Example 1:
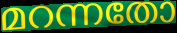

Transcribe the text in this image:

മറന്നതോ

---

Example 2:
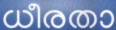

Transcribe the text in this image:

ധീരതാ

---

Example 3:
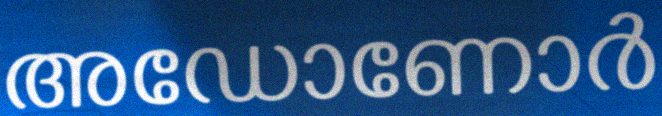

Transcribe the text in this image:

അഡോണോർ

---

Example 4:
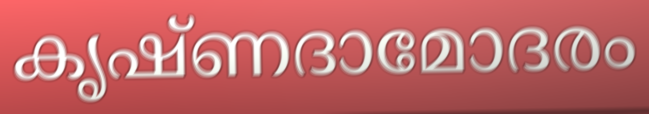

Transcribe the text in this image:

കൃഷ്ണദാമോദരം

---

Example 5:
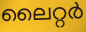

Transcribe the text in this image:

ലൈറ്റർ